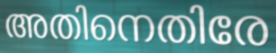
അതിനെതിരേ